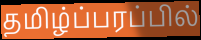
தமிழ்ப்பரப்பில்